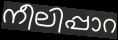
നീലിപ്പാറ